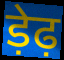
ड़ेढ़